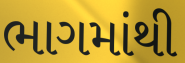
ભાગમાંથી